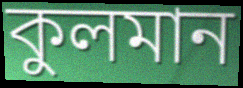
কুলমান